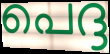
പെദ്ദ